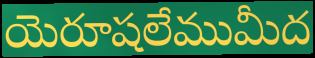
యెరూషలేముమీద